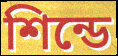
শিন্ডে